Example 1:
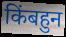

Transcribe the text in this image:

किंबहुन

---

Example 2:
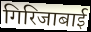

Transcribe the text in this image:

गिरिजाबाई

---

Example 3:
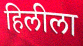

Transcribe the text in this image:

हिलीला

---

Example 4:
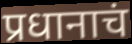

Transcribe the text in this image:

प्रधानाचं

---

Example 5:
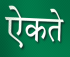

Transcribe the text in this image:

ऐकते